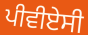
ਪੀਵੀਏਸੀ